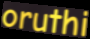
oruthi